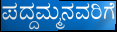
ಪದ್ದಮ್ಮನವರಿಗೆ